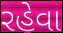
રહેવા